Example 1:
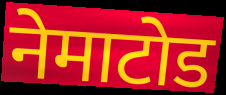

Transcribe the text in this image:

नेमाटोड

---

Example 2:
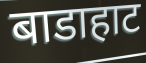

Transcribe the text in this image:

बाडाहाट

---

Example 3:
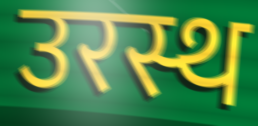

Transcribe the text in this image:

उरस्थ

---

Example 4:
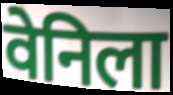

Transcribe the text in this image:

वेनिला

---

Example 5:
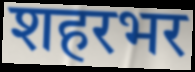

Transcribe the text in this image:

शहरभर